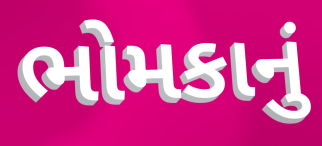
ભોમકાનું